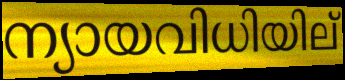
ന്യായവിധിയില്